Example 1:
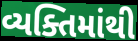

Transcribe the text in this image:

વ્યક્તિમાંથી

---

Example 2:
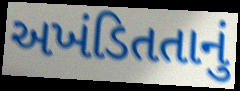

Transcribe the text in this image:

અખંડિતતાનું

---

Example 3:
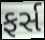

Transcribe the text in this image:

ફર્સ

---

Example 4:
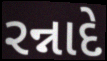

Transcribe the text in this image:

રન્નાદે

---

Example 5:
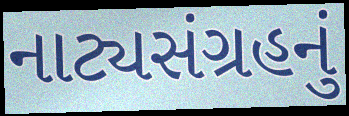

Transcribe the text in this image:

નાટ્યસંગ્રહનું